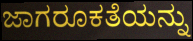
ಜಾಗರೂಕತೆಯನ್ನು